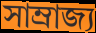
সাম্রাজ্য